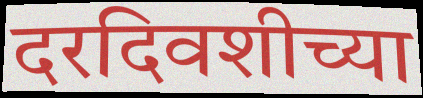
दरदिवशीच्या